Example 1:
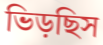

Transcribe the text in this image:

ভিড়ছিস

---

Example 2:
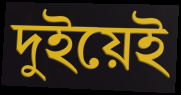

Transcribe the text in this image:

দুইয়েই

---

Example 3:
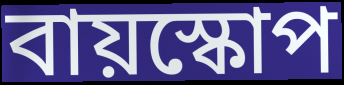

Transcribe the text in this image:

বায়স্কোপ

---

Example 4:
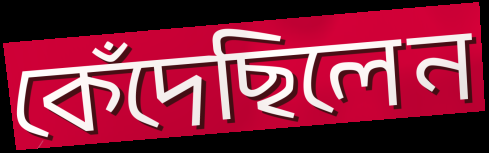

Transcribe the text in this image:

কেঁদেছিলেন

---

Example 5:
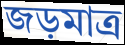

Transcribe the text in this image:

জড়মাত্র